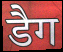
डैग